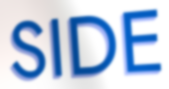
SIDE